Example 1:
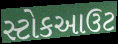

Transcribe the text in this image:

સ્ટોકઆઉટ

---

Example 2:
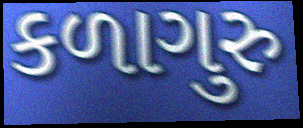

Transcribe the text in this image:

કળાગુરુ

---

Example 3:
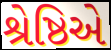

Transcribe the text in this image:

શ્રેષ્ઠિએ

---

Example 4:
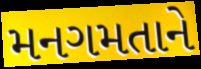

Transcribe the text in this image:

મનગમતાને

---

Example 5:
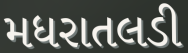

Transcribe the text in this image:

મધરાતલડી